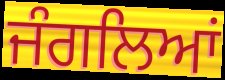
ਜੰਗਲਿਆਂ